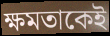
ক্ষমতাকেই